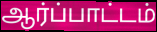
ஆர்ப்பாட்டம்